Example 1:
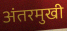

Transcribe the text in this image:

अंतरमुखी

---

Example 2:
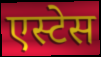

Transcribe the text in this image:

एस्टेस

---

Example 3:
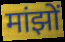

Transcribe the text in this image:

मांझों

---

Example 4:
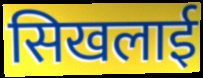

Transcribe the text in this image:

सिखलाई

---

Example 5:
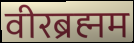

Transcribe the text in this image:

वीरब्रह्मम